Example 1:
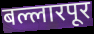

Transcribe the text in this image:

बल्लारपूर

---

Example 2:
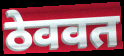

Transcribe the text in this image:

ठेववत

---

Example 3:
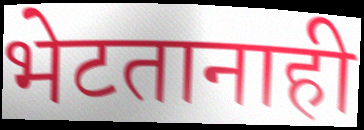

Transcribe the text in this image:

भेटतानाही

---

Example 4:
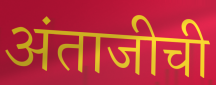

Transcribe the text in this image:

अंताजीची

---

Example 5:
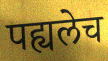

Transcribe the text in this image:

पह्यलेच